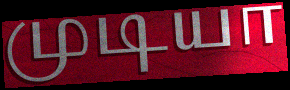
முடியா